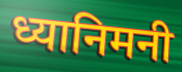
ध्यानिमनी